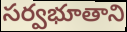
సర్వభూతాని